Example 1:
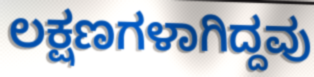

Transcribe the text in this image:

ಲಕ್ಷಣಗಳಾಗಿದ್ದವು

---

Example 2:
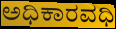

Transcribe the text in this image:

ಅಧಿಕಾರವಧಿ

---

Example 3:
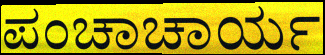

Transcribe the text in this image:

ಪಂಚಾಚಾರ್ಯ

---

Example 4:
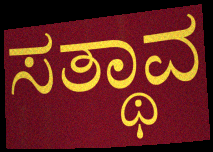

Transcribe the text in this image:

ಸತ್ಥಾವ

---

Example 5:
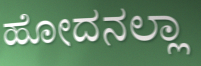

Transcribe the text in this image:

ಹೋದನಲ್ಲಾ